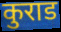
कुराड